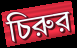
চিরুর